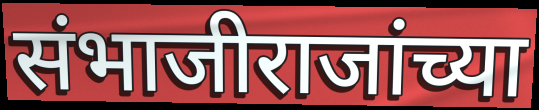
संभाजीराजांच्या